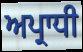
ਅਪ੍ਰਾਧੀ